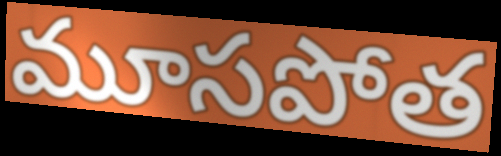
మూసపోత